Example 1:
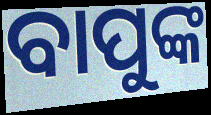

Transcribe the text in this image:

ବାପୁଙ୍କ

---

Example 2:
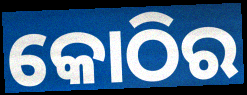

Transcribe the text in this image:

କୋଠିର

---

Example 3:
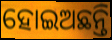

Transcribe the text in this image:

ହୋଇଅଛନ୍ତି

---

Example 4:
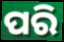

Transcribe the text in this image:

ପରି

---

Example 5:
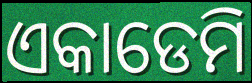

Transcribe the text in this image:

ଏକାଡେମି